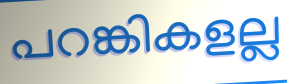
പറങ്കികളല്ല